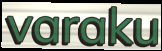
varaku